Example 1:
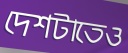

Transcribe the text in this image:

দেশটাতেও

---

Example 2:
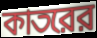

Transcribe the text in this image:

কাতরের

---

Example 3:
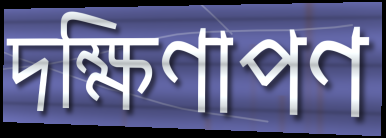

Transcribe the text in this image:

দক্ষিণাপণ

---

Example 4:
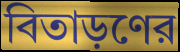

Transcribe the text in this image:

বিতাড়ণের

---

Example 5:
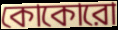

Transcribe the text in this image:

কোকোরো